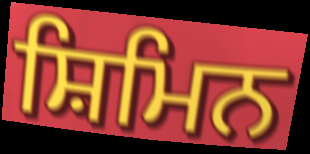
ਸ਼ਿਮਿਨ